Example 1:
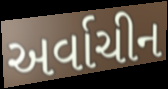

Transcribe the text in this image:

અર્વાચીન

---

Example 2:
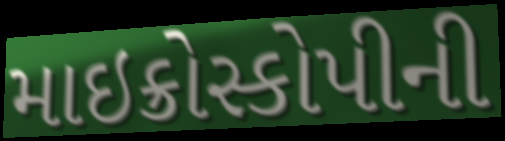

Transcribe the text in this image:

માઇક્રોસ્કોપીની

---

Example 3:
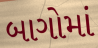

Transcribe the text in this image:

બાગોમાં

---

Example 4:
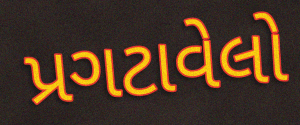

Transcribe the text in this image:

પ્રગટાવેલો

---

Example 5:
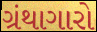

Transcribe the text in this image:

ગ્રંથાગારો